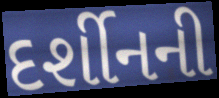
દર્શીનની